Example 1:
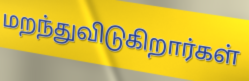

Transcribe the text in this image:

மறந்துவிடுகிறார்கள்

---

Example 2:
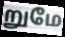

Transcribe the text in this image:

றுமே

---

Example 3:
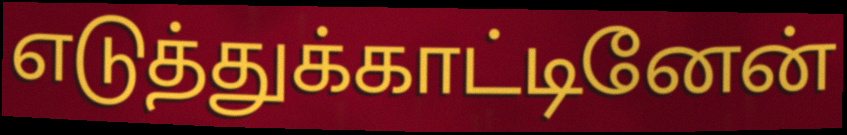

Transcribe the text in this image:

எடுத்துக்காட்டினேன்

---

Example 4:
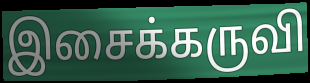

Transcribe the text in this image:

இசைக்கருவி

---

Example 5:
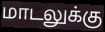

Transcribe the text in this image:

மாடலுக்கு